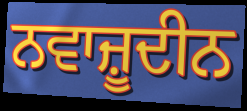
ਨਵਾਜ਼ੂਦੀਨ